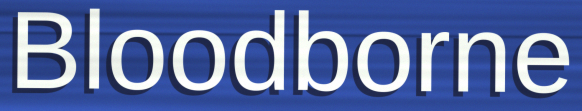
Bloodborne